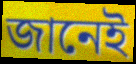
জানেই